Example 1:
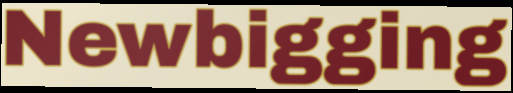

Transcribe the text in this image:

Newbigging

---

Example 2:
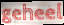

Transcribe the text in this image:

geheel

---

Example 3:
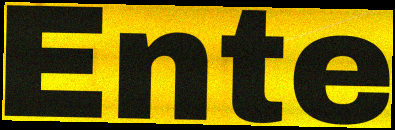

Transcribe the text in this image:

Ente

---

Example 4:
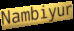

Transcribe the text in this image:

Nambiyur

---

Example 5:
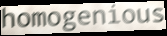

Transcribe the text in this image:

homogenious